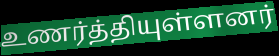
உணர்த்தியுள்ளனர்